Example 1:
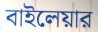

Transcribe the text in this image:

বাইলেয়ার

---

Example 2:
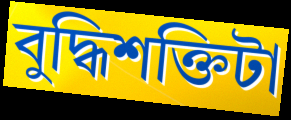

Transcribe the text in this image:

বুদ্ধিশক্তিটা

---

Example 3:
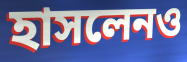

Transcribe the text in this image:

হাসলেনও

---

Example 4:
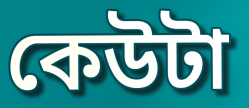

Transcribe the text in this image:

কেউটা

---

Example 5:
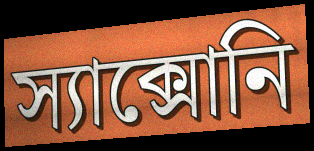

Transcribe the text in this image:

স্যাক্সোনি